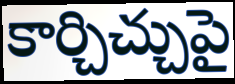
కార్చిచ్చుపై